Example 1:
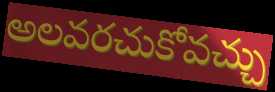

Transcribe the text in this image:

అలవరచుకోవచ్చు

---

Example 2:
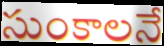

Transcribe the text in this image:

సుంకాలనే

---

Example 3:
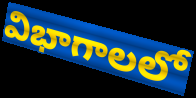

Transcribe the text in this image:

విభాగాలలో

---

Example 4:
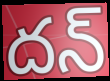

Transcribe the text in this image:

దన్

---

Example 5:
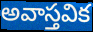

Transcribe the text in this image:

అవాస్తవిక